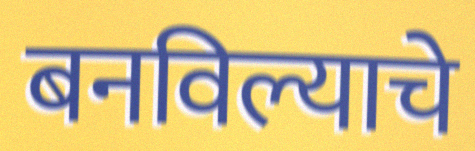
बनविल्याचे